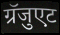
ग्रॅजुएट